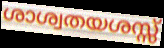
ശാശ്വതയശസ്സ്